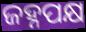
ଜହ୍ନପକ୍ଷ